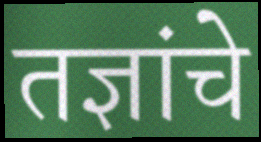
तज्ञांचे